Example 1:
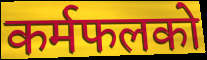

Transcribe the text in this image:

कर्मफलको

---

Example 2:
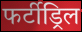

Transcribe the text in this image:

फर्टीड्रिल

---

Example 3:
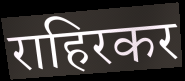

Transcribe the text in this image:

राहिरकर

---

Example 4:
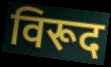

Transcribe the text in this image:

विरूद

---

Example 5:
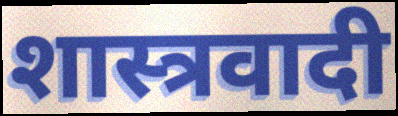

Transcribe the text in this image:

शास्त्रवादी